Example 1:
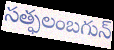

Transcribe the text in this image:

సత్ఫలంబగున్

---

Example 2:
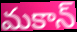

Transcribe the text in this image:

మకాన్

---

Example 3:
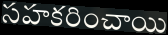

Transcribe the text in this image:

సహకరించాయి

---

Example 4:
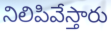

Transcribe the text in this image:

నిలిపివేస్తారు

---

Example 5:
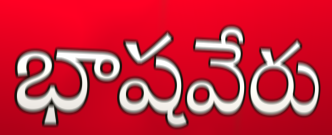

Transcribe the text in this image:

భాషవేరు